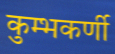
कुम्भकर्णी